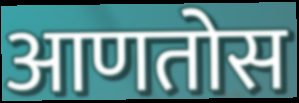
आणतोस